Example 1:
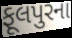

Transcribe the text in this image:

ફૂલપુરના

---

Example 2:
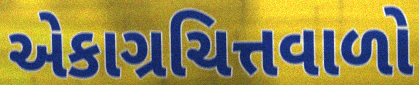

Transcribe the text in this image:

એકાગ્રચિત્તવાળો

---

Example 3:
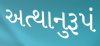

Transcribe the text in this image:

અત્થાનુરૂપં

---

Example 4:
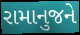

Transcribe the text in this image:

રામાનુજને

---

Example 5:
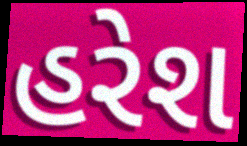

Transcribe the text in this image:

હરેશ